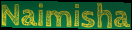
Naimisha